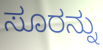
ಸೂರನ್ನು